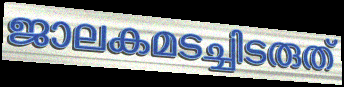
ജാലകമടച്ചിടരുത്